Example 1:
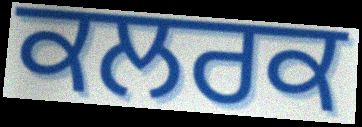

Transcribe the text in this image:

ਕਲਰਕ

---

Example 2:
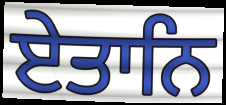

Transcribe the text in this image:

ਏਤਾਨਿ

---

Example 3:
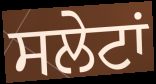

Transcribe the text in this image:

ਸਲੇਟਾਂ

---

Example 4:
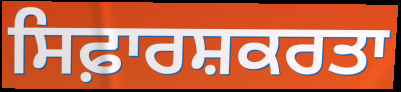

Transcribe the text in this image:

ਸਿਫ਼ਾਰਸ਼ਕਰਤਾ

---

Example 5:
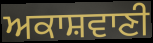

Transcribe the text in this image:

ਅਕਾਸ਼ਵਾਣੀ